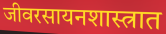
जीवरसायनशास्त्रात